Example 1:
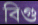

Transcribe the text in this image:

বিগু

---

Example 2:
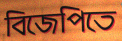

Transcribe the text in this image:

বিজেপিতে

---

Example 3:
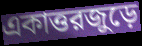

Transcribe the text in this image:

একাত্তরজুড়ে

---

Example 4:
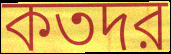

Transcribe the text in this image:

কতদর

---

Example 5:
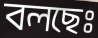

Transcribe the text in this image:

বলছেঃ